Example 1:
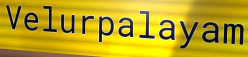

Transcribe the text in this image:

Velurpalayam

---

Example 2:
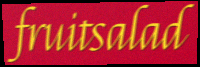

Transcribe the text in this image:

fruitsalad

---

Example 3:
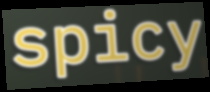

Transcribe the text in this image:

spicy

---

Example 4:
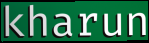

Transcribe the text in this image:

kharun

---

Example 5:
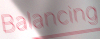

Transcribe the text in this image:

Balancing